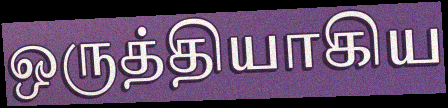
ஒருத்தியாகிய